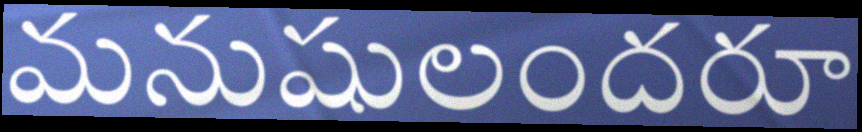
మనుషులందరూ